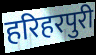
हरिहरपुरी